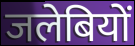
जलेबियों